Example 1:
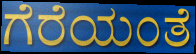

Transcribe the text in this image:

ಗೆರೆಯಂತೆ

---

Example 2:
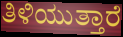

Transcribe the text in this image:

ತಿಳಿಯುತ್ತಾರೆ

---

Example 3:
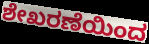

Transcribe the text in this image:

ಶೇಖರಣೆಯಿಂದ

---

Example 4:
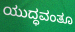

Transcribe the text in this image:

ಯುದ್ಧವಂತೂ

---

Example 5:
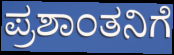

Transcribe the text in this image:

ಪ್ರಶಾಂತನಿಗೆ